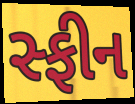
સ્ફીન